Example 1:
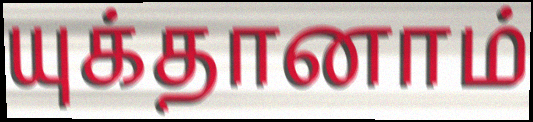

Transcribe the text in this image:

யுக்தானாம்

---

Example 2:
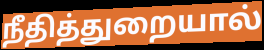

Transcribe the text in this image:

நீதித்துறையால்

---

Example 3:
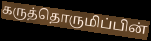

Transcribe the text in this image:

கருத்தொருமிப்பின்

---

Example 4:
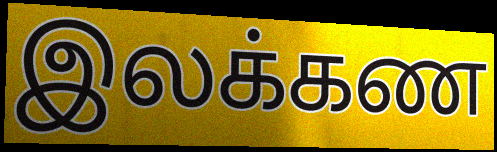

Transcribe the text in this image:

இலக்கண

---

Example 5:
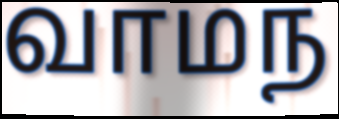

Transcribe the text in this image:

வாமந